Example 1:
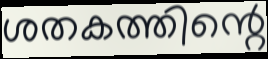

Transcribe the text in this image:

ശതകത്തിന്റെ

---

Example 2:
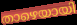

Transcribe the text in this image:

താഴെയായി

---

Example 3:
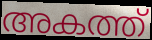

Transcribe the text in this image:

അകത്ത്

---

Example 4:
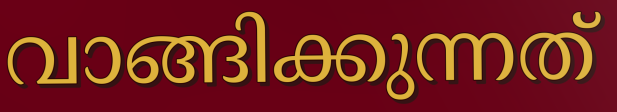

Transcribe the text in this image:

വാങ്ങിക്കുന്നത്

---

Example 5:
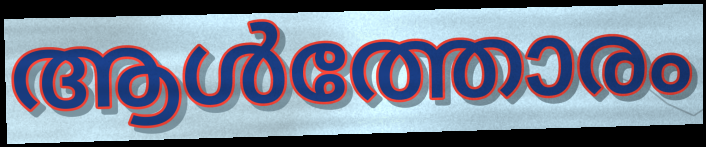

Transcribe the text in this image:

ആൾത്തോരം